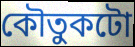
কৌতুকটো